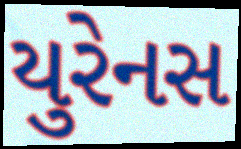
યુરેનસ